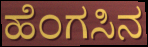
ಹೆಂಗಸಿನ